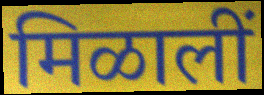
मिळालीं